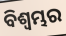
ବିଶ୍ବମ୍ଭର